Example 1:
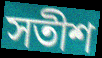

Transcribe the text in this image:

সতীশ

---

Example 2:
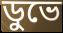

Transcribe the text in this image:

ডুভে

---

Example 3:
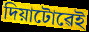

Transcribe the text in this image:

দিয়াটোৱেই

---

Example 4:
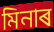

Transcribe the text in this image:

মিনাৰ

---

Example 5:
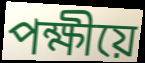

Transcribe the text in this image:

পক্ষীয়ে